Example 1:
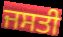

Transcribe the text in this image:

ਜਸਤੀ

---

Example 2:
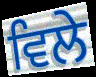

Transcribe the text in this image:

ਵਿਲੇ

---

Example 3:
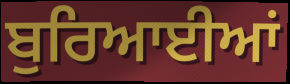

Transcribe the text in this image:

ਬੁਰਿਆਈਆਂ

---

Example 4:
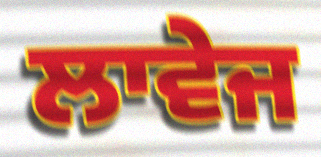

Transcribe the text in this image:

ਲਾਵੇਜ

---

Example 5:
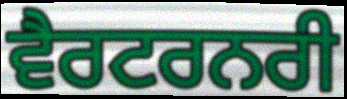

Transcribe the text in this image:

ਵੈਰਟਰਨਰੀ